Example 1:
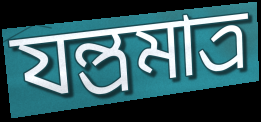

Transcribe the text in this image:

যন্ত্রমাত্র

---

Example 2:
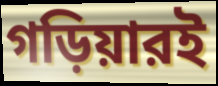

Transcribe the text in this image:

গড়িয়ারই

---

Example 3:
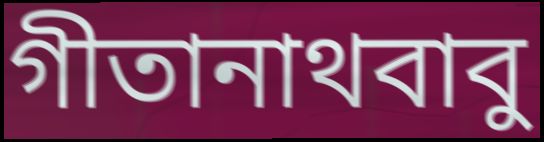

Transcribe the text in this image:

গীতানাথবাবু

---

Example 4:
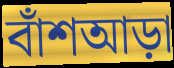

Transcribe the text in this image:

বাঁশআড়া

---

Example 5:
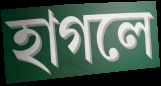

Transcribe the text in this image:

হাগলে